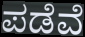
ಪಡೆವೆ